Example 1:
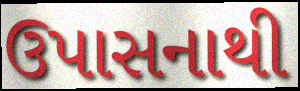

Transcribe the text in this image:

ઉપાસનાથી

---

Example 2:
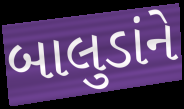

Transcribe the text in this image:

બાલુડાંને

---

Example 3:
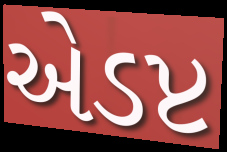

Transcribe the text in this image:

એડપ્ટ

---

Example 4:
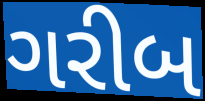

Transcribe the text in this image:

ગરીબ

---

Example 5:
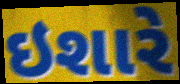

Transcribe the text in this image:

ઇશારે